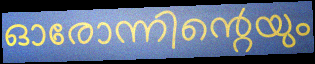
ഓരോന്നിന്റെയും